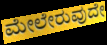
ಮೇಲೇರುವುದೇ